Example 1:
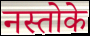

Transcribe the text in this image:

नस्तोके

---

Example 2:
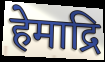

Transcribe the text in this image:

हेमाद्रि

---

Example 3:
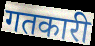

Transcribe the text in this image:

गतकारी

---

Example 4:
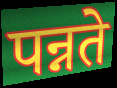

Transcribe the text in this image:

पन्नते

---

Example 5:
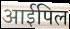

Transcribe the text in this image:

आईपिल